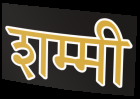
शम्मी